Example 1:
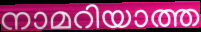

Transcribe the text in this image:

നാമറിയാത്ത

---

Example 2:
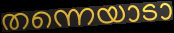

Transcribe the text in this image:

തന്നെയാടാ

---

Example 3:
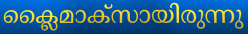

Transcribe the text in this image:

ക്ലൈമാക്സായിരുന്നു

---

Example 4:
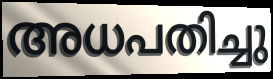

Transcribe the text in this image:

അധപതിച്ചു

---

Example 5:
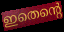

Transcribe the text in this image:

ഇതെന്റെ